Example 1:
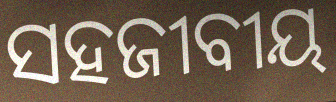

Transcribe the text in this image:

ସହଜୀବୀୟ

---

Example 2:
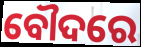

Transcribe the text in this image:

ବୌଦରେ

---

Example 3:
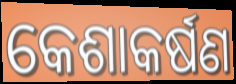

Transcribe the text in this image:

କେଶାକର୍ଷଣ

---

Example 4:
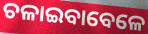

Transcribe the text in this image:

ଚଳାଇବାବେଳେ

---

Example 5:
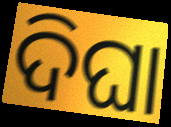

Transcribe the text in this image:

ଦିଘା